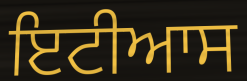
ਇਟੀਆਸ